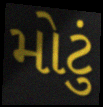
મોટું